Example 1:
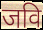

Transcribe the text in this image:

जवि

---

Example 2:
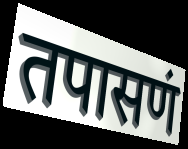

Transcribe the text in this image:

तपासणं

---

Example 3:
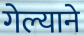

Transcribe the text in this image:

गेल्‍याने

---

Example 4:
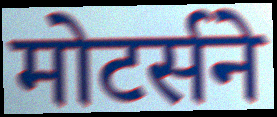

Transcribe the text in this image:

मोटर्सने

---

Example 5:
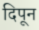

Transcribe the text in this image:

दिपून